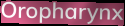
Oropharynx